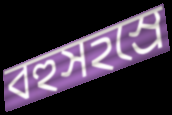
বহুসহস্রে